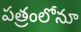
పత్రంలోనూ